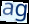
ag